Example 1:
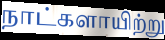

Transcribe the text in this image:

நாட்களாயிற்று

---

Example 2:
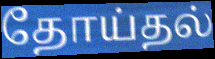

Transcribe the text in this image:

தோய்தல்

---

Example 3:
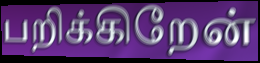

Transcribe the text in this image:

பறிக்கிறேன்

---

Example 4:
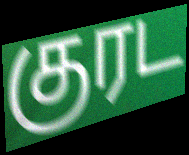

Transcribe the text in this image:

குரட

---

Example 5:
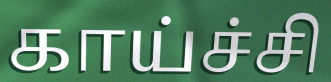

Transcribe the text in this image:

காய்ச்சி